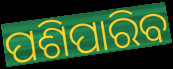
ପଶିପାରିବ